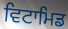
ਵਿਟਾਮਿਡ